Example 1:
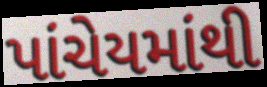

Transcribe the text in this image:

પાંચેયમાંથી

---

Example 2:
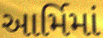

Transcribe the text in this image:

આર્મિમાં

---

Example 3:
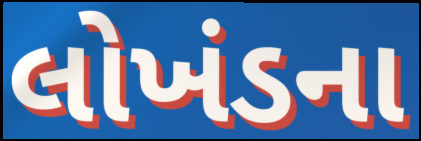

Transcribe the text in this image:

લોખંડના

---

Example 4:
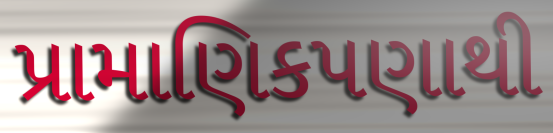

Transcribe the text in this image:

પ્રામાણિકપણાથી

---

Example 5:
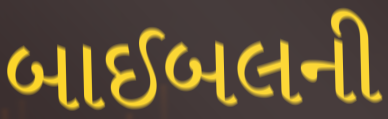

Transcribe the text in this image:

બાઈબલની